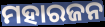
ମହାରଜନ